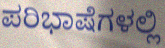
ಪರಿಭಾಷೆಗಳಲ್ಲಿ